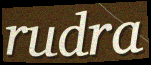
rudra